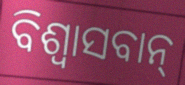
ବିଶ୍ଵାସବାନ୍